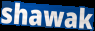
shawak